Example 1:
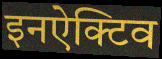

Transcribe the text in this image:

इनऐक्टिव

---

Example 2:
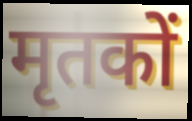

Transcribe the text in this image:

मृतकों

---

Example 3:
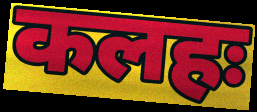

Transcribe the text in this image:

कलहः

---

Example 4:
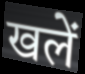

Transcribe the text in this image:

खलें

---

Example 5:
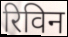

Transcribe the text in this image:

रिविन